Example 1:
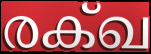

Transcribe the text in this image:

രക്ഖ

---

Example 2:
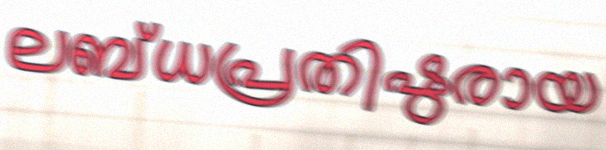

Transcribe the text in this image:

ലബ്ധപ്രതിഷ്ഠരായ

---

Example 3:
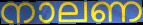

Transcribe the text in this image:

നാലണ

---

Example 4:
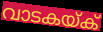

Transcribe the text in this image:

വാടകയ്ക്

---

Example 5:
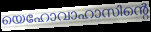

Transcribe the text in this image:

യെഹോവാഹാസിന്റെ